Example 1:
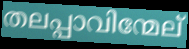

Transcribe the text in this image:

തലപ്പാവിന്മേല്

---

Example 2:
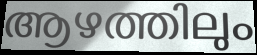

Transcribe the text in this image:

ആഴത്തിലും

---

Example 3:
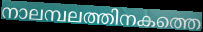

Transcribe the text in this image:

നാലമ്പലത്തിനകത്തെ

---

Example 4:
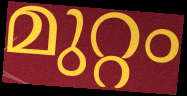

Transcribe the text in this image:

മുറ്റം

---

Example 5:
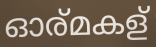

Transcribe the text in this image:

ഓര്മകള്